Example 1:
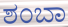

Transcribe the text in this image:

ಶಂಬಾ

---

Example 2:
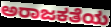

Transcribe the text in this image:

ಅರಾಜಕತೆಯ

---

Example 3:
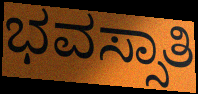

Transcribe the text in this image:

ಭವಸ್ಸಾತಿ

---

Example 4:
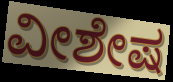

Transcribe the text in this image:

ವೀಶೇಷ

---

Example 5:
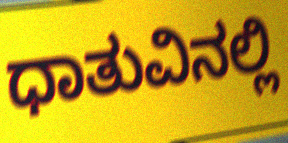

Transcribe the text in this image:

ಧಾತುವಿನಲ್ಲಿ